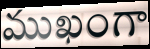
ముఖంగా